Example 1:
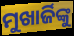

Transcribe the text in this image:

ମୁଖାର୍ଜିଙ୍କୁ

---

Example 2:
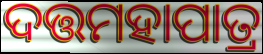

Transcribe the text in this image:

ଦତ୍ତମହାପାତ୍ର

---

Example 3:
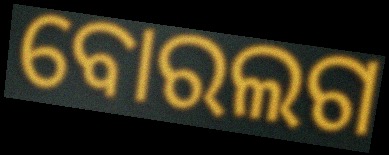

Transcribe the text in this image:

ବୋରଲଗ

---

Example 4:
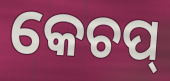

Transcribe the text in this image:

କେଚପ୍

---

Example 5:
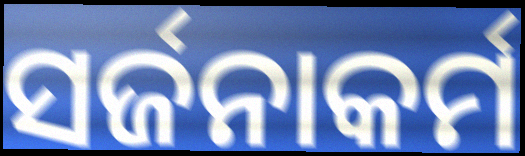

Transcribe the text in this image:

ସର୍ଜନାକର୍ମ